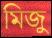
মিজু